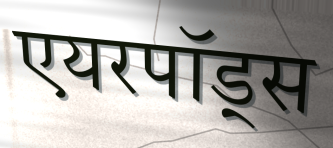
एयरपॉड्स